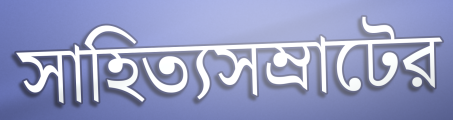
সাহিত্যসম্রাটের